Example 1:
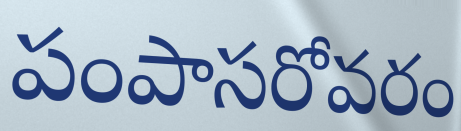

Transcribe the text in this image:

పంపాసరోవరం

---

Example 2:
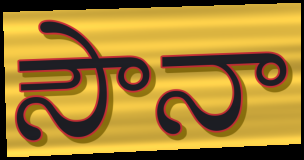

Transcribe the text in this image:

సౌనా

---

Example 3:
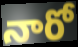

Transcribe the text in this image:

నారో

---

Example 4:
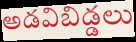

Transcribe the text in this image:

అడవిబిడ్డలు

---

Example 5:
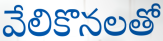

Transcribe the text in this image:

వేలికొనలతో